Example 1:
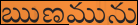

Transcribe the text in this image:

ఋణమును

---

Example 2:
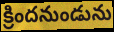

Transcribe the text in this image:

క్రిందనుండును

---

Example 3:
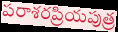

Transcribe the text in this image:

పరాశరప్రియపుత్ర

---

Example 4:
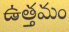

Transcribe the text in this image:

ఉత్తమం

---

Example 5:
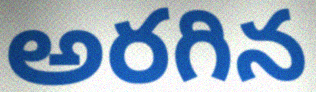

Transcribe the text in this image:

అరగిన